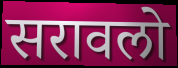
सरावलो